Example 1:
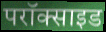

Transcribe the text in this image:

परॉक्साइड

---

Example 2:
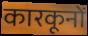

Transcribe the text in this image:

कारकूनों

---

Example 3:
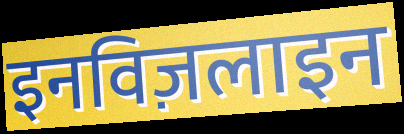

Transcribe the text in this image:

इनविज़लाइन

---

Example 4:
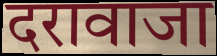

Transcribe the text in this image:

दरावाजा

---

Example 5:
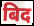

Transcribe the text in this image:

बिद